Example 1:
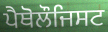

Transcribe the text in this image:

ਪੈਥੋਲੌਜਿਸਟ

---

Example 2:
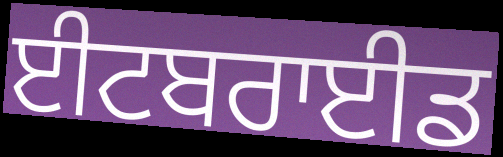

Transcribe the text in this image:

ਈਟਬਰਾਈਡ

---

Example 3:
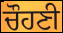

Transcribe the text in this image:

ਚੌਹਣੀ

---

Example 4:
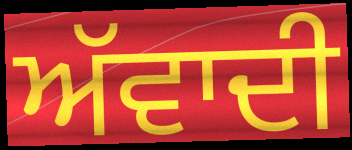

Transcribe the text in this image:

ਅੱਵਾਦੀ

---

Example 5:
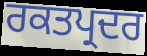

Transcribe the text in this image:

ਰਕਤਪ੍ਰਦਰ